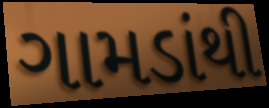
ગામડાંથી